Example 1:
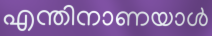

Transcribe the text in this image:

എന്തിനാണയാൾ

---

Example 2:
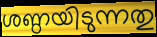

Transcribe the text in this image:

ശണ്ഠയിടുന്നതു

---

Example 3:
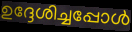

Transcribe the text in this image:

ഉദ്ദേശിച്ചപ്പോൾ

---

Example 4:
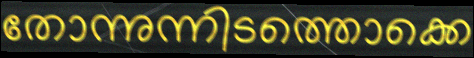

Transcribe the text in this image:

തോന്നുന്നിടത്തൊക്കെ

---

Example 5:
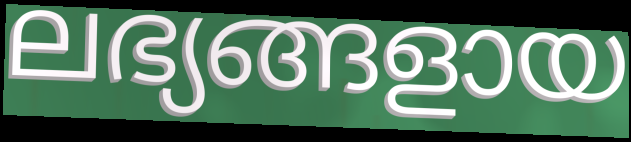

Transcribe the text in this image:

ലഭ്യങ്ങളായ